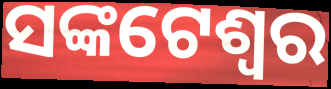
ସଙ୍କଟେଶ୍ୱର